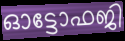
ഓട്ടോഫജി